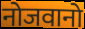
नोजवानो